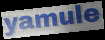
yamule